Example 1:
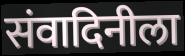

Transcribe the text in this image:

संवादिनीला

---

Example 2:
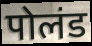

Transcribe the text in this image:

पोलंड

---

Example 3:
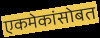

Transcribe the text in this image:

एकमेकांसोबत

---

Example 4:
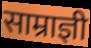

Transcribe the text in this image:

साम्राज्ञी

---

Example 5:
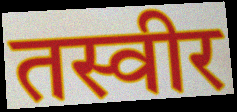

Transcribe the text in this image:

तस्वीर